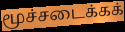
மூச்சடைக்கக்